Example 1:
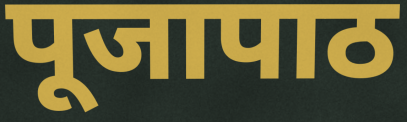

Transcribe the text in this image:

पूजापाठ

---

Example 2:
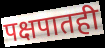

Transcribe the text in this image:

पक्षपातही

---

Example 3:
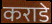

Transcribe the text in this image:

कराडे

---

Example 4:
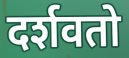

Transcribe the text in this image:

दर्शवतो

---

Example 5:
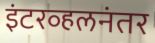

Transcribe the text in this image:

इंटरव्हलनंतर